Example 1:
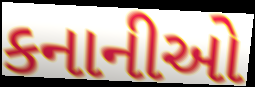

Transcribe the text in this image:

કનાનીઓ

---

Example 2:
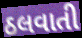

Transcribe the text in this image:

ઠલવાતી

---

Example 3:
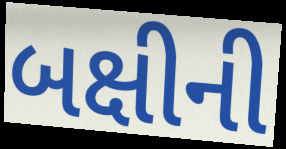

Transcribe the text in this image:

બક્ષીની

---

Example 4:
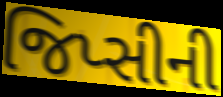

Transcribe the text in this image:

જિપ્સીની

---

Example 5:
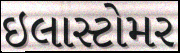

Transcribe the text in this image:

ઇલાસ્ટોમર